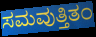
ಸಮವುತ್ತಿತಂ